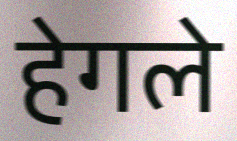
हेगले